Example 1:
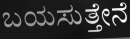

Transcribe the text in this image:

ಬಯಸುತ್ತೇನೆ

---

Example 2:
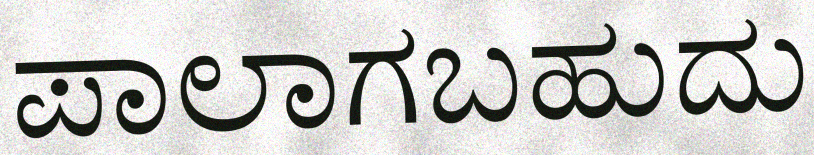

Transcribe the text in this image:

ಪಾಲಾಗಬಹುದು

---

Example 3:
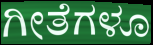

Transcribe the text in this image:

ಗೀತೆಗಳೂ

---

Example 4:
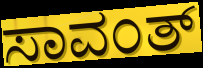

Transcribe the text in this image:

ಸಾವಂತ್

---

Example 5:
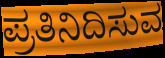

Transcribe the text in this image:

ಪ್ರತಿನಿದಿಸುವ